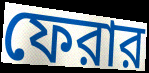
ফেরার